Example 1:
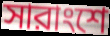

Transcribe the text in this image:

সারাংশে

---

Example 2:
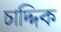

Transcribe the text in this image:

চাদ্দিক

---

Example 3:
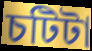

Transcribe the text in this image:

চটিটা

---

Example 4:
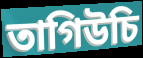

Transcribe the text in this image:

তাগিউচি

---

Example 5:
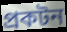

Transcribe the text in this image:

প্রকটন